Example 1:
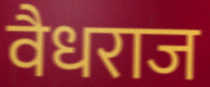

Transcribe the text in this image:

वैधराज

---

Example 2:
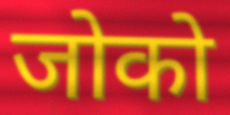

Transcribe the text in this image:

जोको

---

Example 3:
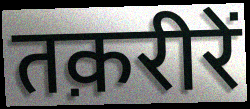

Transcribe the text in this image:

तक़रीरें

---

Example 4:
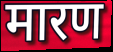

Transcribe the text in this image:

मारण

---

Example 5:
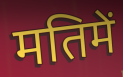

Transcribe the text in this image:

मतिमें